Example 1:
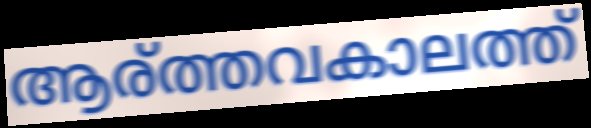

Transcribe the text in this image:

ആര്ത്തവകാലത്ത്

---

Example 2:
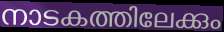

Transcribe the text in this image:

നാടകത്തിലേക്കും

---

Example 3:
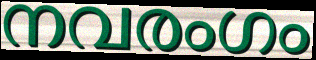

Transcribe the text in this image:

നവരംഗം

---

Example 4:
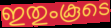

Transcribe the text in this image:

ഇതുംകൂടെ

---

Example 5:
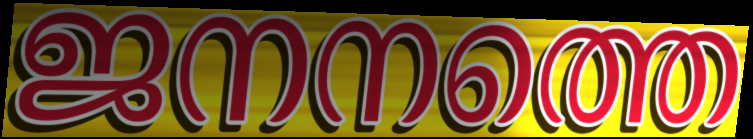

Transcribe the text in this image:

ജനനത്തെ